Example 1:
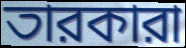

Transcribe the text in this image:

তারকারা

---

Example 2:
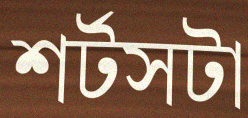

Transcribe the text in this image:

শর্টসটা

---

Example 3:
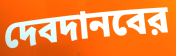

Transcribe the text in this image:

দেবদানবের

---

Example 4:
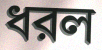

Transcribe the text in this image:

ধরল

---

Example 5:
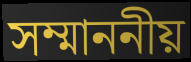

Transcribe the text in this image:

সম্মাননীয়